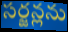
సర్జన్లను